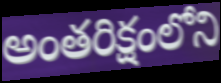
అంతరిక్షంలోని